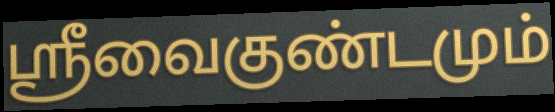
ஸ்ரீவைகுண்டமும்